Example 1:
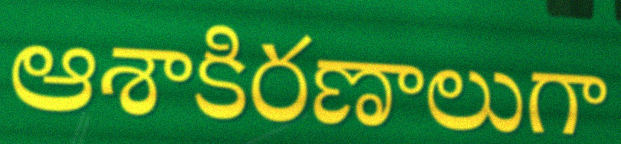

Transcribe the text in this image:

ఆశాకిరణాలుగా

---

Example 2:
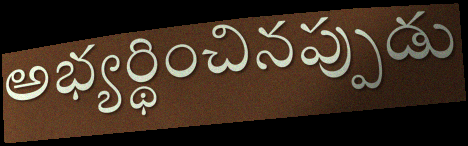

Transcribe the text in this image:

అభ్యర్థించినప్పుడు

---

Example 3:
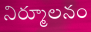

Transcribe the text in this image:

నిర్మూలనం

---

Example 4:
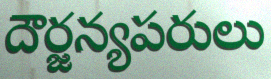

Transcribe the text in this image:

దౌర్జన్యపరులు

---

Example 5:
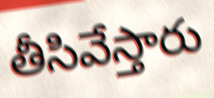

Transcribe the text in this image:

తీసివేస్తారు